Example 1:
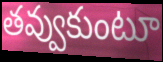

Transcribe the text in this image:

తవ్వుకుంటూ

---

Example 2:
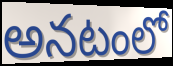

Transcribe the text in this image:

అనటంలో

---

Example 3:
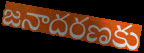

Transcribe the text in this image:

జనాదరణకు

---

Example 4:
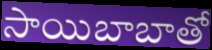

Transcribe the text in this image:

సాయిబాబాతో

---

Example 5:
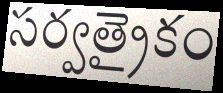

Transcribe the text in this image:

సర్వత్రైకం